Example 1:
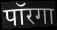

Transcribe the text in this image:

पॉरगा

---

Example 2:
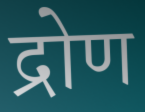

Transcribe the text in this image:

द्रोण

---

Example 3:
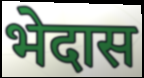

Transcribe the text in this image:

भेदास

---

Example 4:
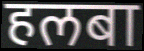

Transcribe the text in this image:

हलबा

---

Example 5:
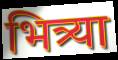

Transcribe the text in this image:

भित्र्या